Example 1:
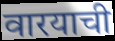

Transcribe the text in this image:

वारयाची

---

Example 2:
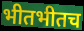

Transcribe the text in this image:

भीतभीतच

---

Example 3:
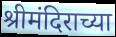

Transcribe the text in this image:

श्रीमंदिराच्या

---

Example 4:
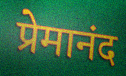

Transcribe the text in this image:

प्रेमानंद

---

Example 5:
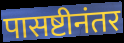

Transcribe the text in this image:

पासष्टीनंतर